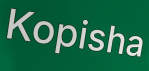
Kopisha